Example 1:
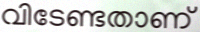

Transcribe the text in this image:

വിടേണ്ടതാണ്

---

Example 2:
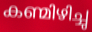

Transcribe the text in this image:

കണ്മിഴിച്ചു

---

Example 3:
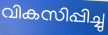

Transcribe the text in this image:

വികസിപ്പിച്ചു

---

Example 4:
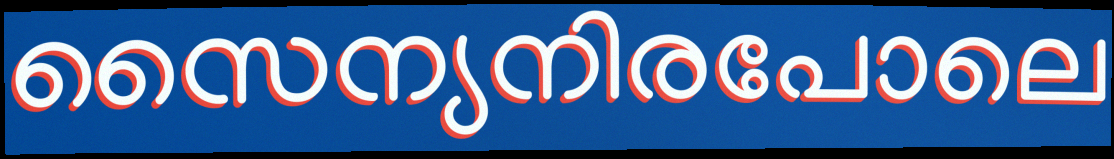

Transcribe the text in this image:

സൈന്യനിരപോലെ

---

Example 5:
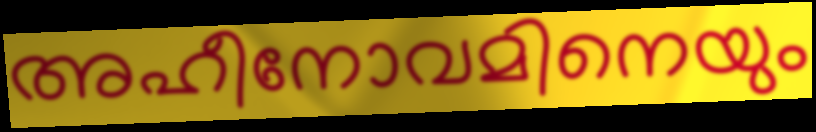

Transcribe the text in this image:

അഹീനോവമിനെയും